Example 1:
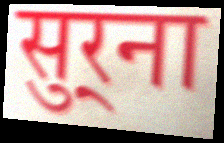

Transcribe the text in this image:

सुर्ना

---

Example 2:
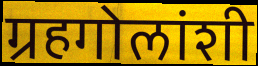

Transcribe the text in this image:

ग्रहगोलांशी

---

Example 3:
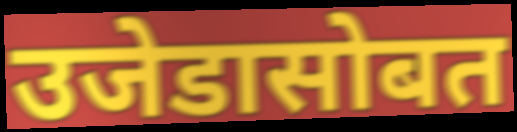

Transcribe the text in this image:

उजेडासोबत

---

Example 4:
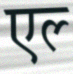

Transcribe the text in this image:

एल्‍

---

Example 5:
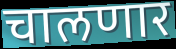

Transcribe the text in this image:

चालणार